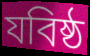
যবিষ্ঠ